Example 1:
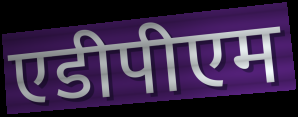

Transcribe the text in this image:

एडीपीएम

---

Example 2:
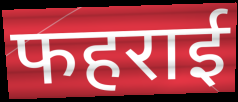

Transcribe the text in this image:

फहराई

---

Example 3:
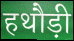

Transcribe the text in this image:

हथौड़ी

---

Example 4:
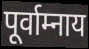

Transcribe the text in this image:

पूर्वाम्नाय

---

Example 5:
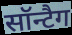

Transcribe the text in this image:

सॉन्टैग